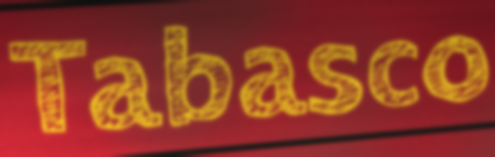
Tabasco